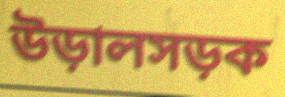
উড়ালসড়ক